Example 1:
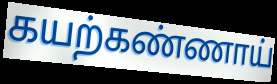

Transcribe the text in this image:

கயற்கண்ணாய்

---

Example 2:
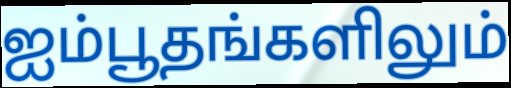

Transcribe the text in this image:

ஐம்பூதங்களிலும்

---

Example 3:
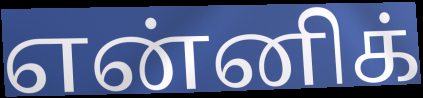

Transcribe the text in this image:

என்னிக்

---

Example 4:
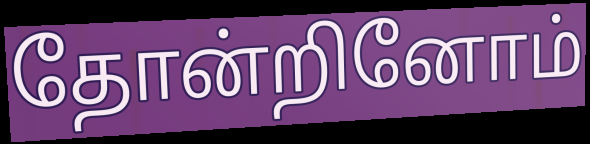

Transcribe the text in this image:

தோன்றினோம்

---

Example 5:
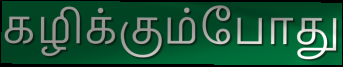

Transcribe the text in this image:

கழிக்கும்போது